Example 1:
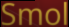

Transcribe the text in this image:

Smol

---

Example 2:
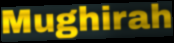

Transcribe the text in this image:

Mughirah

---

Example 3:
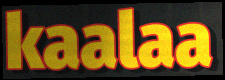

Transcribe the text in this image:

kaalaa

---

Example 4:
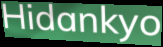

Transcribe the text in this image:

Hidankyo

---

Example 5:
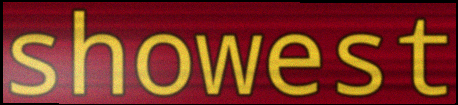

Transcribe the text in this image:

showest